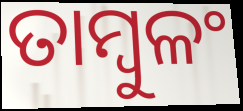
ତାମ୍ବୁଳଂ